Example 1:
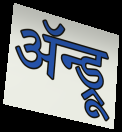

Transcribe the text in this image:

ॲन्ड्रू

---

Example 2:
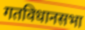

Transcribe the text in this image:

गतविधानसभा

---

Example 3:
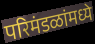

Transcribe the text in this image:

परिमंडळांमध्ये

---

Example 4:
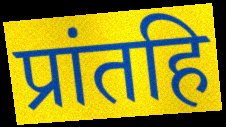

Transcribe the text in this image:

प्रांतहि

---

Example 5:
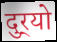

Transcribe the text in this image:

दुर्यो